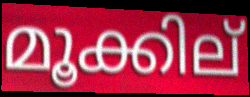
മൂക്കില്